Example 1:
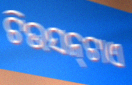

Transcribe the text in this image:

ଟିଉସନ୍‍ଟାଏ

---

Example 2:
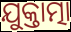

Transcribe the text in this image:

ଯୁକ୍ତାତ୍ମା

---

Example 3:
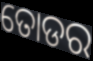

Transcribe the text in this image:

ତୋଡର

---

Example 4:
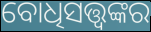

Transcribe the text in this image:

ବୋଧିସତ୍ତ୍ଵଙ୍କର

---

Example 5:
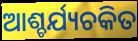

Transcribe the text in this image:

ଆଶ୍ଚର୍ଯ୍ୟଚକିତ